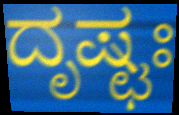
ದೃಷ್ಟಃ